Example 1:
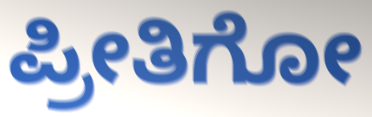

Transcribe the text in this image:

ಪ್ರೀತಿಗೋ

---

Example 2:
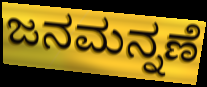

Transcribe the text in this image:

ಜನಮನ್ನಣೆ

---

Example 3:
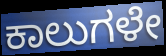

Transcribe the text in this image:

ಕಾಲುಗಳೇ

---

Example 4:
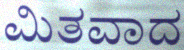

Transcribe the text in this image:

ಮಿತವಾದ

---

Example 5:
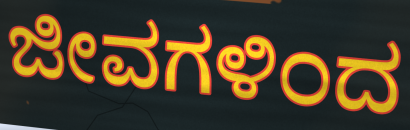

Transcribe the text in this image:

ಜೀವಗಳಿಂದ